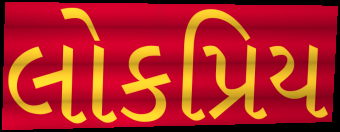
લોકપ્રિય